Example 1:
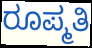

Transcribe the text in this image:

ರೂಪ್ಮತಿ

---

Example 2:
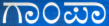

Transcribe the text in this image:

ಗಾಂಪಾ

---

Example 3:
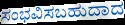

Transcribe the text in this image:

ಸಂಭವಿಸಬಹುದಾದ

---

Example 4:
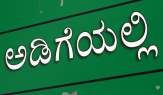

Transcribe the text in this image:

ಅಡಿಗೆಯಲ್ಲಿ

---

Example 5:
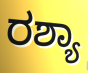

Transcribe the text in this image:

ರಶ್ಯಾ